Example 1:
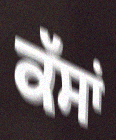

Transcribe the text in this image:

ਕੱਸਾਂ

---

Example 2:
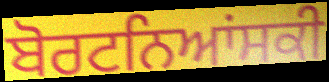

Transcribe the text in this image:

ਬੋਰਟਨਿਆਂਸਕੀ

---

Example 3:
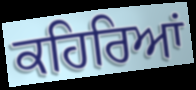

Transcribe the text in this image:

ਕਹਿਰਿਆਂ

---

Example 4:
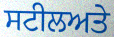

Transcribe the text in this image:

ਸਟੀਲਅਤੇ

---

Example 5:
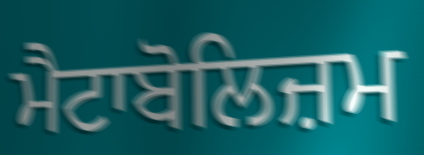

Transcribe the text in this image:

ਮੈਟਾਬੋਲਿਜ਼ਮ